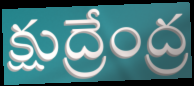
క్షుద్రేంద్ర